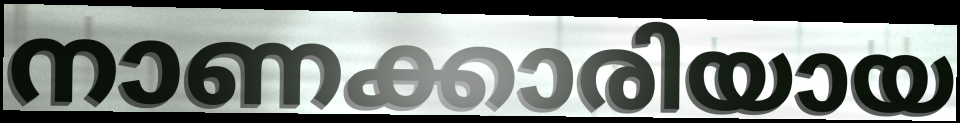
നാണക്കാരിയായ